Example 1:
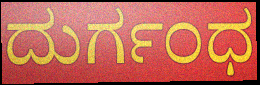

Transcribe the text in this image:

ದುರ್ಗಂಧ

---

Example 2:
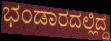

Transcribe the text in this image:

ಭಂಡಾರದಲ್ಲಿದ್ದ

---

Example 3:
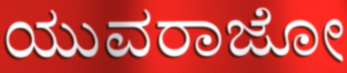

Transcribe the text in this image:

ಯುವರಾಜೋ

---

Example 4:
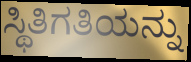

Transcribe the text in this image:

ಸ್ಥಿತಿಗತಿಯನ್ನು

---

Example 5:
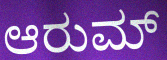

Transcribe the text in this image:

ಆರುಮ್